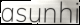
asunhi